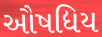
ઔષદ્યિય